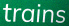
trains